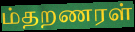
ம்தறணரள்